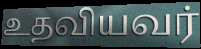
உதவியவர்